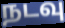
நடவு